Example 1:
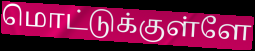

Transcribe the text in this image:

மொட்டுக்குள்ளே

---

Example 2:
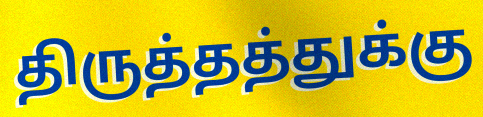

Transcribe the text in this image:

திருத்தத்துக்கு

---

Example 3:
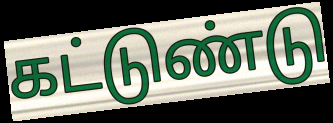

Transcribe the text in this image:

கட்டுண்டு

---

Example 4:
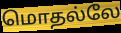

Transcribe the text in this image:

மொதல்லே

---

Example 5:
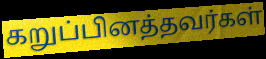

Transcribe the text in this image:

கறுப்பினத்தவர்கள்